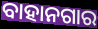
ବାହାନଗାର